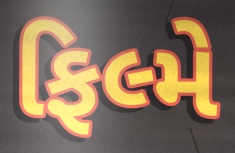
ફિલ્મે